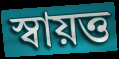
স্বায়ত্ত